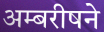
अम्बरीषने